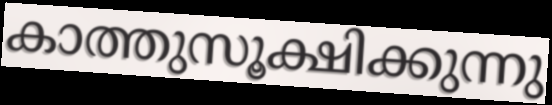
കാത്തുസൂക്ഷിക്കുന്നു